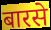
बारसे